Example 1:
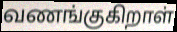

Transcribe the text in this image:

வணங்குகிறாள்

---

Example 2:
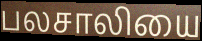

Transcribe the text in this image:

பலசாலியை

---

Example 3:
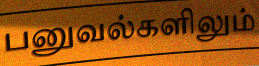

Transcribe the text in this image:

பனுவல்களிலும்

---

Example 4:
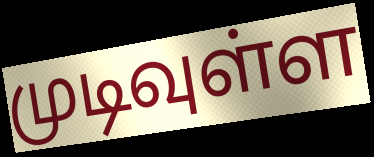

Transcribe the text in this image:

முடிவுள்ள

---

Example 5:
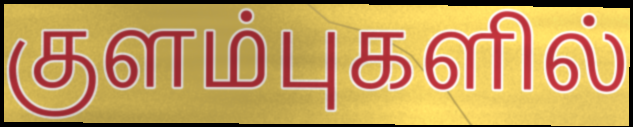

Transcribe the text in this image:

குளம்புகளில்